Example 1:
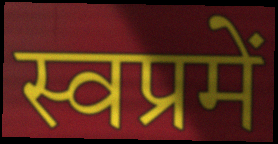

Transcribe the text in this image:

स्वप्रमें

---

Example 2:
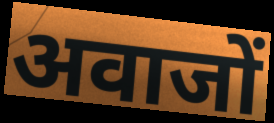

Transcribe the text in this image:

अवाजों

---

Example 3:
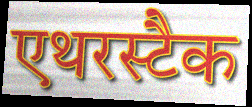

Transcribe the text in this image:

एथरस्टैक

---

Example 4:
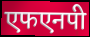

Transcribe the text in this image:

एफएनपी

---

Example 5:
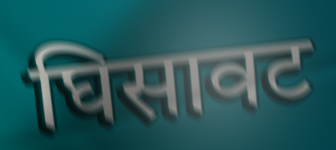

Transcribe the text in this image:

घिसावट